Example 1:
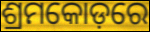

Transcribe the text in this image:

ଶ୍ରମକୋଡ଼ରେ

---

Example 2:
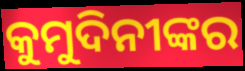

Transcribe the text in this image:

କୁମୁଦିନୀଙ୍କର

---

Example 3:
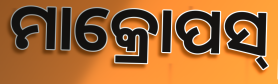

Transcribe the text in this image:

ମାକ୍ରୋପସ୍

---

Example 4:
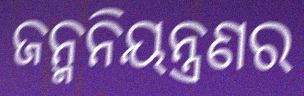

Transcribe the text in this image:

ଜନ୍ମନିୟନ୍ତ୍ରଣର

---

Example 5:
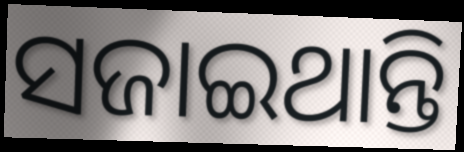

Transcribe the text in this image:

ସଜାଇଥାନ୍ତି